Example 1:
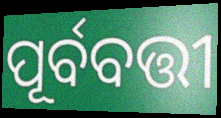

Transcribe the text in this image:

ପୂର୍ବବତ୍ତୀ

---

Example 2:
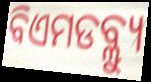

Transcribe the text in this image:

ବିଏମଡବ୍ଲ୍ୟୁ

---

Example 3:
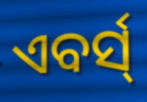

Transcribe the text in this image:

ଏବର୍ସ୍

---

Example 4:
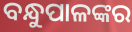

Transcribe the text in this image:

ବନ୍ଧୁପାଳଙ୍କର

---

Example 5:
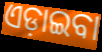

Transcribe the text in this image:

ଏଡ଼ାଇବା